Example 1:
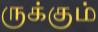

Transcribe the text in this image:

ருக்கும்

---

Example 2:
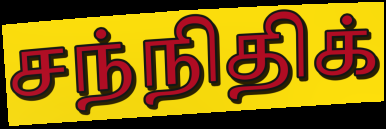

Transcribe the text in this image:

சந்நிதிக்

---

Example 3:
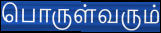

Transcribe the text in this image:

பொருள்வரும்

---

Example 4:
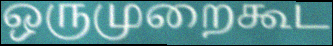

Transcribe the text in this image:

ஒருமுறைகூட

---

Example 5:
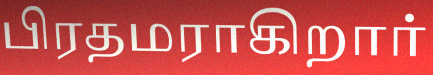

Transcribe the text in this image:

பிரதமராகிறார்